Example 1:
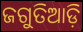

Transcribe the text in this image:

ଜଗୁତିଆଡ଼ି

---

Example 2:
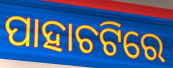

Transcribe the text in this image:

ପାହାଚଟିରେ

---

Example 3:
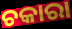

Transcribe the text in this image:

ଚକାରା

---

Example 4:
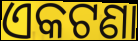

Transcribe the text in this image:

ଏକଟଣା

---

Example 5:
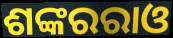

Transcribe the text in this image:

ଶଙ୍କରରାଓ